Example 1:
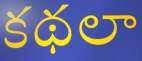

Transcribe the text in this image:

కథలా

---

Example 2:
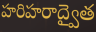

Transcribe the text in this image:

హరిహరాద్వైత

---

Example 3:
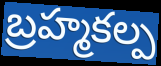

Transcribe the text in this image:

బ్రహ్మకల్ప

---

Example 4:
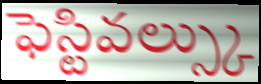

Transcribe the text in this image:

ఫెస్టివల్స్కు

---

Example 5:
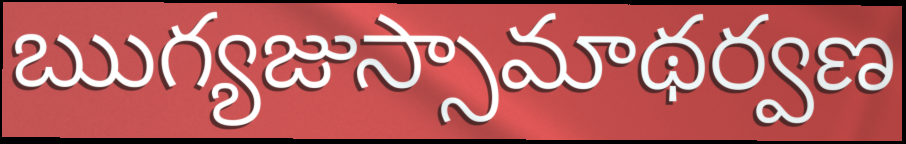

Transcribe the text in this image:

ఋగ్యజుస్సామాథర్వణ